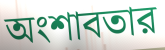
অংশাবতার